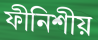
ফীনিশীয়